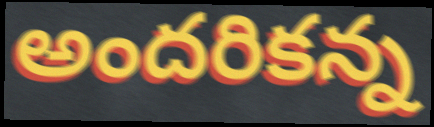
అందరికన్న